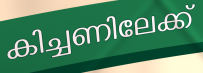
കിച്ചണിലേക്ക്